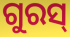
ଗୁରସ୍